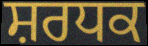
ਸ਼ਰਧਕ